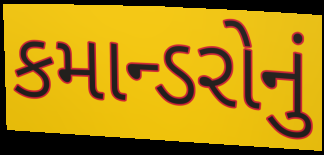
કમાન્ડરોનું